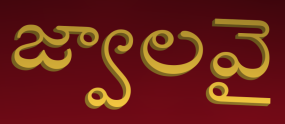
జ్వాలవై